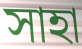
সাহা